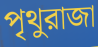
পৃথুরাজা